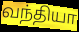
வந்தியா